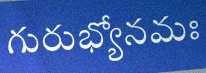
గురుభ్యోనమః